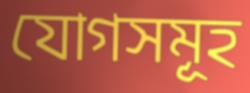
যোগসমূহ